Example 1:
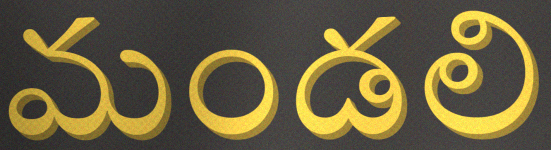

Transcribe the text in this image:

మండలి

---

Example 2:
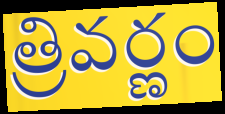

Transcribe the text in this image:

త్రివర్ణం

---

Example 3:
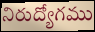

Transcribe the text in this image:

నిరుద్యోగము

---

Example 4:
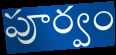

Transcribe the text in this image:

పూర్వం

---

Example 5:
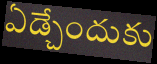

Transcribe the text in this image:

ఏడ్చేందుకు